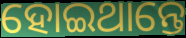
ହୋଇଥାନ୍ତେ